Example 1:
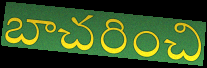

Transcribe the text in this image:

బాచరించి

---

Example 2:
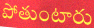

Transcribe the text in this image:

పోతుంటారు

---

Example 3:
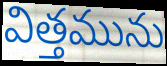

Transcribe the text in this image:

విత్తమును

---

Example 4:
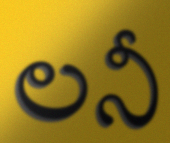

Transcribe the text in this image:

లనీ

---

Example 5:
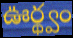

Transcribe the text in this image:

ఊర్థ్వం